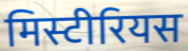
मिस्टीरियस